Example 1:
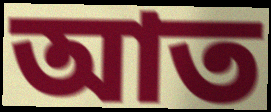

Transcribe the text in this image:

আত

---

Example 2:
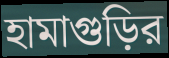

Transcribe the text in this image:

হামাগুড়ির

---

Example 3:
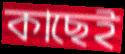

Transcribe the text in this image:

কাছেই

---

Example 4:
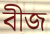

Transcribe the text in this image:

বীজ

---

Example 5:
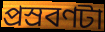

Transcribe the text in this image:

প্রস্রবণটা